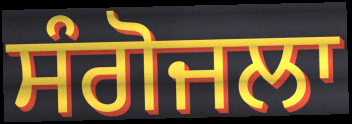
ਸੰਗੋਜਲਾ